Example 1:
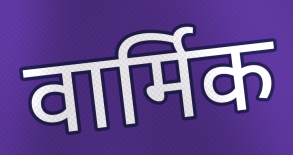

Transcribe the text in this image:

वार्मिक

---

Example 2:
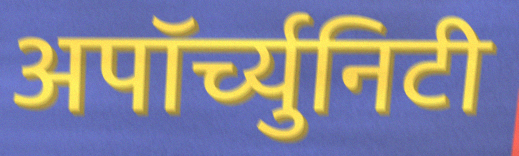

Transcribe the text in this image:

अपॉर्च्युनिटी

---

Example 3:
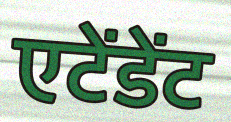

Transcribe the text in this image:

एटेंडेंट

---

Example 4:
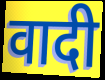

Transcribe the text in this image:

वादी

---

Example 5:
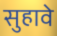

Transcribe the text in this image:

सुहावे